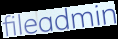
fileadmin